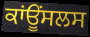
ਕਾਂਊਂਸਲਸ